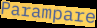
Parampare